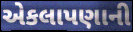
એકલાપણાની